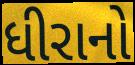
ધીરાનો